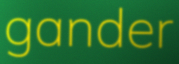
gander